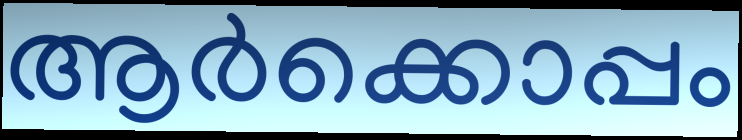
ആർക്കൊപ്പം